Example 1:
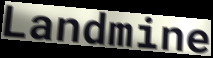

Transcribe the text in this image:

Landmine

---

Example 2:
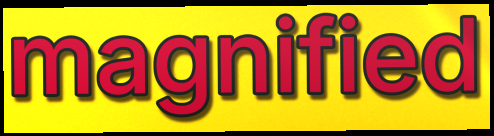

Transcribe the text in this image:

magnified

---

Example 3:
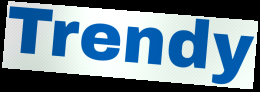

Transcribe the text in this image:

Trendy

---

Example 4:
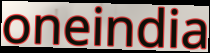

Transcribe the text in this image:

oneindia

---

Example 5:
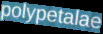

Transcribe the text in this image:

polypetalae